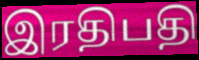
இரதிபதி